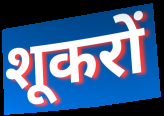
शूकरों